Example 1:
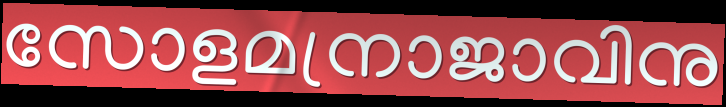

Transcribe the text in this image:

സോളമന്രാജാവിനു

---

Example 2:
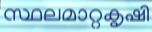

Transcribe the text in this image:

സ്ഥലമാറ്റകൃഷി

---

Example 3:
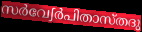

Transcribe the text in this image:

സർവേഽർപിതാസ്തദു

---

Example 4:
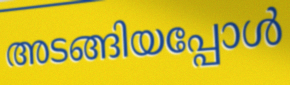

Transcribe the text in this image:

അടങ്ങിയപ്പോൾ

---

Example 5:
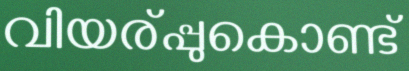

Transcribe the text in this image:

വിയര്പ്പുകൊണ്ട്